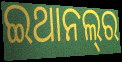
ଇଥାନଲ୍‌ର